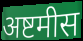
अष्टमीस